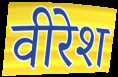
वीरेश